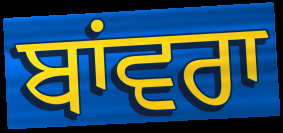
ਬਾਂਵਰਾ